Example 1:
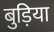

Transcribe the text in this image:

बुड़िया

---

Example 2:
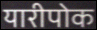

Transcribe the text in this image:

यारीपोक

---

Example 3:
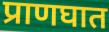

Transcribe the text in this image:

प्राणघात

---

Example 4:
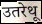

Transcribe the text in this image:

उतरेथू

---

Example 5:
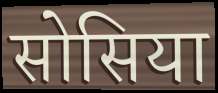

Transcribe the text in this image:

सोसिया